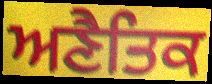
ਅਣੈਤਿਕ